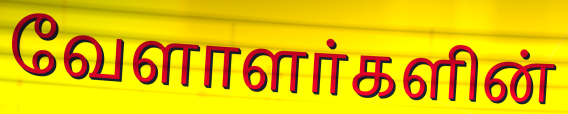
வேளாளர்களின்